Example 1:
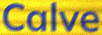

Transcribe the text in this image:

Calve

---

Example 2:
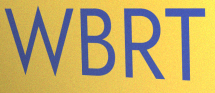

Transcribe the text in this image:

WBRT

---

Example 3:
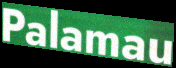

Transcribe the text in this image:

Palamau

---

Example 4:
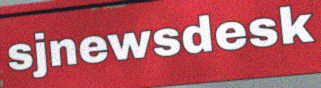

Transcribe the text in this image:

sjnewsdesk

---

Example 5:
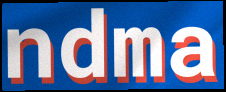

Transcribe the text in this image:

ndma